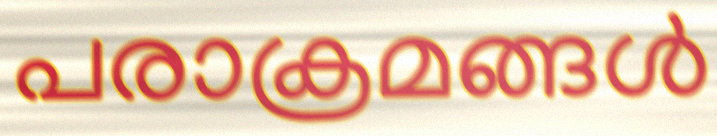
പരാക്രമങ്ങൾ